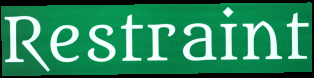
Restraint